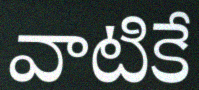
వాటికే